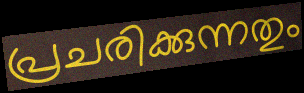
പ്രചരിക്കുന്നതും